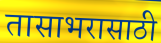
तासाभरासाठी